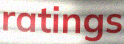
ratings